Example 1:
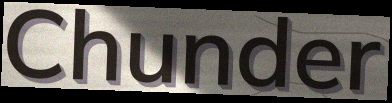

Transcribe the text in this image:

Chunder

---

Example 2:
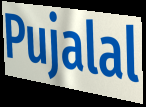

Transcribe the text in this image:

Pujalal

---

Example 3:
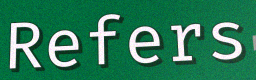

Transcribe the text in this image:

Refers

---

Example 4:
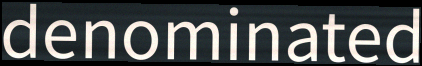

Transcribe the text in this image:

denominated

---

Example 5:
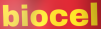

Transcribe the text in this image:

biocel